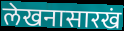
लेखनासारखं